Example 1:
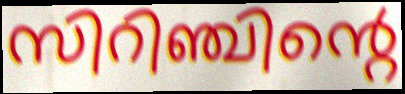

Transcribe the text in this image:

സിറിഞ്ചിന്റെ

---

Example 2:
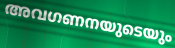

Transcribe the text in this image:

അവഗണനയുടെയും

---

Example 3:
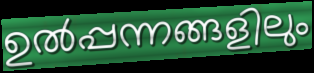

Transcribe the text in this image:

ഉൽപ്പന്നങ്ങളിലും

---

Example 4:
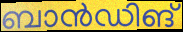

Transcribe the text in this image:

ബാൻഡിങ്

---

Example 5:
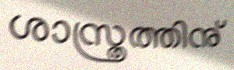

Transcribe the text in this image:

ശാസ്ത്രത്തിനു്